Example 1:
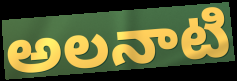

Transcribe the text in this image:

అలనాటి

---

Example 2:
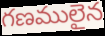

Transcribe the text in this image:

గణములైన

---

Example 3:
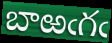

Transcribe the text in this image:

బాఱఁగఁ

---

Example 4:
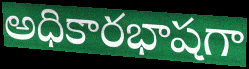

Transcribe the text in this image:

అధికారభాషగా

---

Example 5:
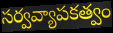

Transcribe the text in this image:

సర్వవ్యాపకత్వం